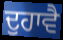
ਦੁਹਾਵੈ